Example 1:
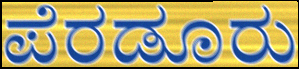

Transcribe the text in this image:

ಪೆರಡೂರು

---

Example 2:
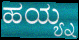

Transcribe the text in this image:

ಹಯ್ಯ್ನ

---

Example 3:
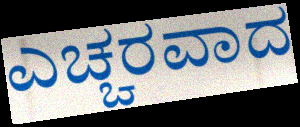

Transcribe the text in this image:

ಎಚ್ಚರವಾದ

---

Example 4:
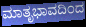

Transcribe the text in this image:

ಮಾತೃಭಾವದಿಂದ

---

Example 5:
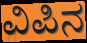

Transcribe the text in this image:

ವಿಪಿನ